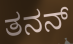
ತನನ್